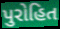
પુરોહિત